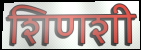
शिणशी